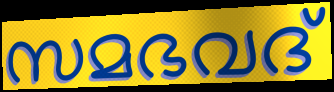
സമഭവദ്